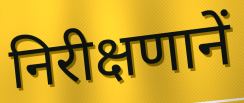
निरीक्षणानें